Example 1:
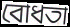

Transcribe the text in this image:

বোধতা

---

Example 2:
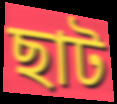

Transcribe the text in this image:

ছাট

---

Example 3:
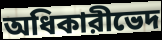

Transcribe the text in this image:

অধিকারীভেদ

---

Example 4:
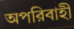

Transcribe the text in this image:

অপরিবাহী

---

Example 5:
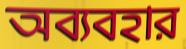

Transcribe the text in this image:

অব্যবহার